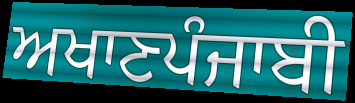
ਅਖਾਣਪੰਜਾਬੀ